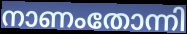
നാണംതോന്നി